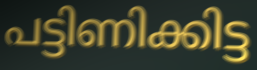
പട്ടിണിക്കിട്ട